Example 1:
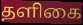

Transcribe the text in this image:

தளிகை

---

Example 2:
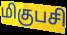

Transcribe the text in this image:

மிகுபசி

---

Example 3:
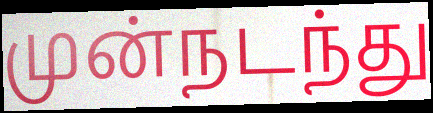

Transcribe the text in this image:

முன்நடந்து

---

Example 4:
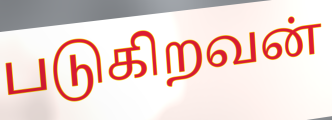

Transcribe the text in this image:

படுகிறவன்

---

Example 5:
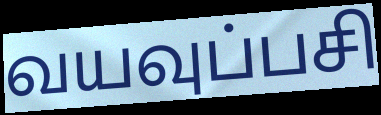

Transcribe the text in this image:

வயவுப்பசி